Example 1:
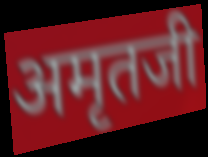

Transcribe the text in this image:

अमृतजी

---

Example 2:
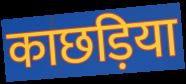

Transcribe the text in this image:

काछड़िया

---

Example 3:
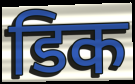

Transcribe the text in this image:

डिक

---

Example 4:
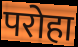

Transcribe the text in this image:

परोहा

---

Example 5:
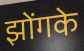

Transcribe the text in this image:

झोंगके